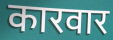
कारवार